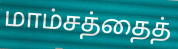
மாம்சத்தைத்